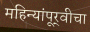
महिन्यांपूर्वीचा